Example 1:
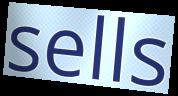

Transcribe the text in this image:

sells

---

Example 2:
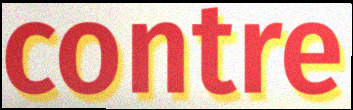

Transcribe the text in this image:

contre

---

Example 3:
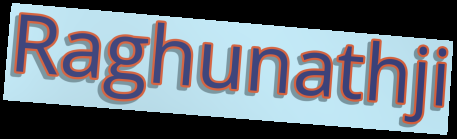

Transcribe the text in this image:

Raghunathji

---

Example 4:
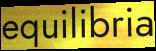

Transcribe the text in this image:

equilibria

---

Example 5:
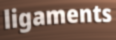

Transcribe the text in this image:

ligaments